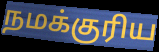
நமக்குரிய